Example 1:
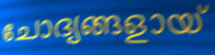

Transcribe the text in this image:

ചോദ്യങ്ങളായ്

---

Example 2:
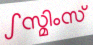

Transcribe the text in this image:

ഽസ്മിംസ്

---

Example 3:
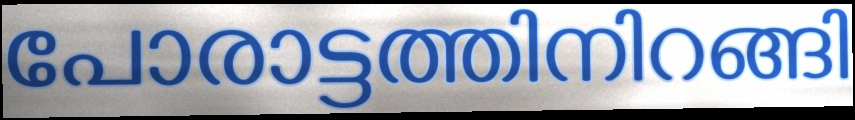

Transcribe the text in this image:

പോരാട്ടത്തിനിറങ്ങി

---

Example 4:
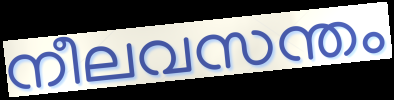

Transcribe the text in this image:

നീലവസന്തം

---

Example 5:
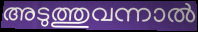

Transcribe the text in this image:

അടുത്തുവന്നാൽ